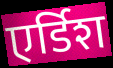
एर्डिश